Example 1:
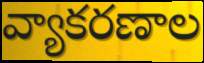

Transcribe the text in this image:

వ్యాకరణాల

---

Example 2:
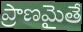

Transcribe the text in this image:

ప్రాణమైతే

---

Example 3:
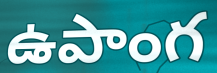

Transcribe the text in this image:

ఉపాంగ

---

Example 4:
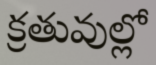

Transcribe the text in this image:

క్రతువుల్లో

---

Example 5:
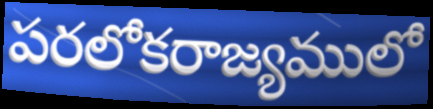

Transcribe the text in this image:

పరలోకరాజ్యములో